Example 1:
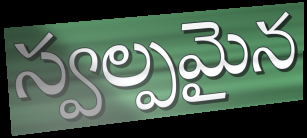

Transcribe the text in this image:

స్వల్పమైన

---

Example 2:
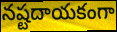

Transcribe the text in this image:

నష్టదాయకంగా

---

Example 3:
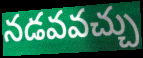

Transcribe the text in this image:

నడవవచ్చు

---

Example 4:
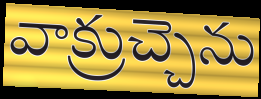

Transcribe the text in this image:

వాక్రుచ్చెను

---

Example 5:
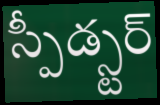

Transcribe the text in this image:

స్పీడ్స్టర్